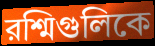
রশ্মিগুলিকে